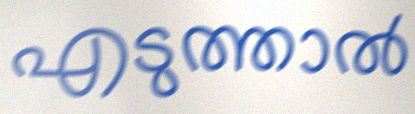
എടുത്താൽ